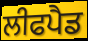
ਲੀਫਪੈਡ